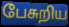
பேசுறிய